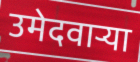
उमेदवाऱ्या